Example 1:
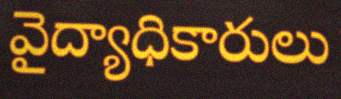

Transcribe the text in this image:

వైద్యాధికారులు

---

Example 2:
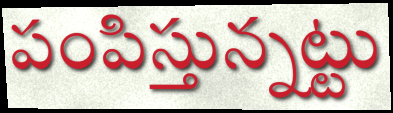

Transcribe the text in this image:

పంపిస్తున్నట్టు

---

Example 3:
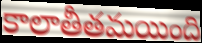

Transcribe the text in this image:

కాలాతీతమయింది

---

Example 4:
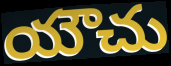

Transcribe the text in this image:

యౌచు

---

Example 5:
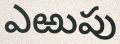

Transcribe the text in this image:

ఎఱుపు